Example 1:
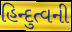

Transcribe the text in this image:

હિન્દુત્વની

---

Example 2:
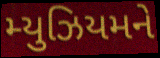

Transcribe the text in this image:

મ્યુઝિયમને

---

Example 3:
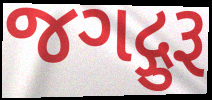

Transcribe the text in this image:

જગદ્ગુરૂ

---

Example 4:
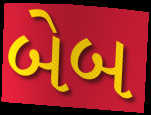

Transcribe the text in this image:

બેબ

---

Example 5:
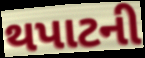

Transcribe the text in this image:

થપાટની